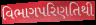
વિભાગપરિણતિથી